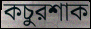
কচুরশাক